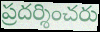
ప్రదర్శించరు